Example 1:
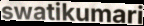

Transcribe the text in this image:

swatikumari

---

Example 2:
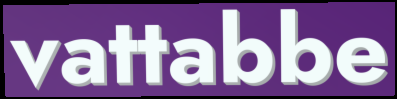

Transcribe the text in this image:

vattabbe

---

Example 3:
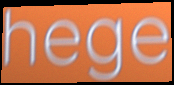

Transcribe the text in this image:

hege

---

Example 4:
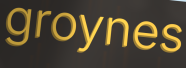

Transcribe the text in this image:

groynes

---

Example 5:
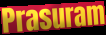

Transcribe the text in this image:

Prasuram